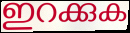
ഇറക്കുക